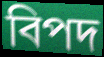
বিপদ